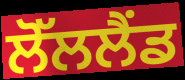
ਲੋੱਲਲੈਂਡ